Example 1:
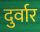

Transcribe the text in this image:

दुर्वार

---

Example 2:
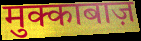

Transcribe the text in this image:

मुक्काबाज़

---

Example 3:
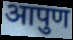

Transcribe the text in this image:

आपुण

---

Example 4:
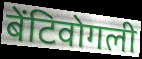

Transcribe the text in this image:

बेंटिवोगली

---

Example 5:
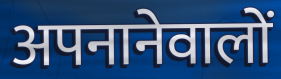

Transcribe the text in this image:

अपनानेवालों